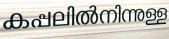
കപ്പലിൽനിന്നുള്ള